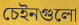
চেইনগুলো